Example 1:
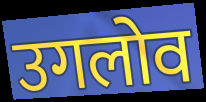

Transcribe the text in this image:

उगलोव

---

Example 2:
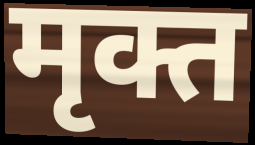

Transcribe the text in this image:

मृक्त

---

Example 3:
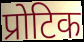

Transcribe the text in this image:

प्रोटिक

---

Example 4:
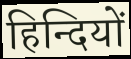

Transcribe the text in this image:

हिन्दियों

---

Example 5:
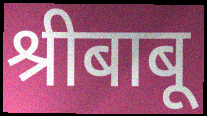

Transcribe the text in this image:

श्रीबाबू